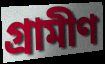
গ্রামীণ